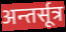
अन्तर्सूत्र